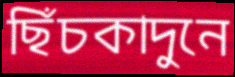
ছিঁচকাদুনে